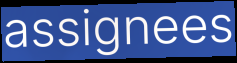
assignees